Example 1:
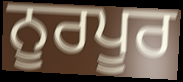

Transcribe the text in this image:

ਨੂਰਪੂਰ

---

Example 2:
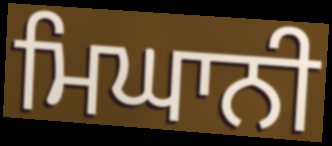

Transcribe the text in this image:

ਮਿਘਾਨੀ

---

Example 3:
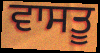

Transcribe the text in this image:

ਵਾਸਤੂ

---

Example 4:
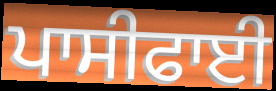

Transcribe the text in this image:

ਪਾਸੀਫਾਈ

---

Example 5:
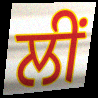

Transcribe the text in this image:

ਲੀਂ